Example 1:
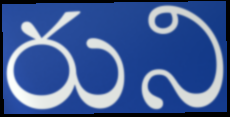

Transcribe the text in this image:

రుని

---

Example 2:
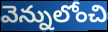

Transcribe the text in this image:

వెన్నులోంచి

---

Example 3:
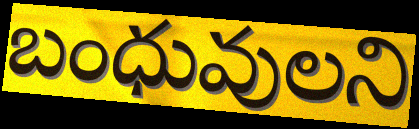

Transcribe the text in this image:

బంధువులని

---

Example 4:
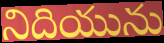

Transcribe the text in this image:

నిదియును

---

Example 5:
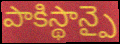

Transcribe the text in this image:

పాకిస్థాన్పై